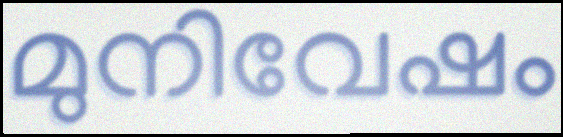
മുനിവേഷം